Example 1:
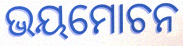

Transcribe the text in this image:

ଭୟମୋଚନ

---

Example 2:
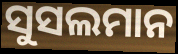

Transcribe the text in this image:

ସୁସଲମାନ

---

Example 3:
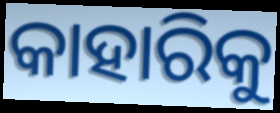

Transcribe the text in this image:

କାହାରିକୁ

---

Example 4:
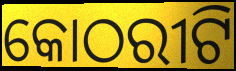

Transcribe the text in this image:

କୋଠରୀଟି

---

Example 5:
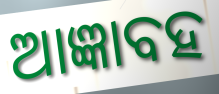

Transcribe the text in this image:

ଆଜ୍ଞାବହ